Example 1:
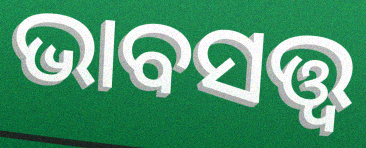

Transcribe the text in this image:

ଭାବସତ୍ତ୍ୱ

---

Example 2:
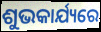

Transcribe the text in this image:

ଶୁଭକାର୍ଯ୍ୟରେ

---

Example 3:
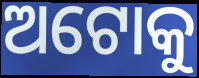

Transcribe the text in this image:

ଅଟୋକୁ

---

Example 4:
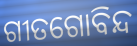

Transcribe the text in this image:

ଗୀତଗୋବିନ୍ଦ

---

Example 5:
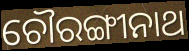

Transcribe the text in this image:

ଚୌରଙ୍ଗୀନାଥ